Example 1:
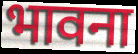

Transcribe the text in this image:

भावना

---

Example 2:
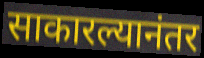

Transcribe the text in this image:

साकारल्यानंतर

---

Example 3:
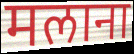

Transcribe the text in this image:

मलाना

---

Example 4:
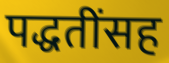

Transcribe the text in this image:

पद्धतींसह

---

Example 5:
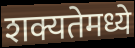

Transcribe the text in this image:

शक्यतेमध्ये